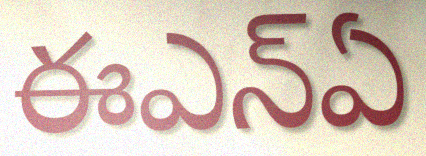
ఈఎన్ఏ